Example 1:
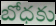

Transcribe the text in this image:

బోధకు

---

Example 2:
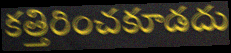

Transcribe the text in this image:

కత్తిరించకూడదు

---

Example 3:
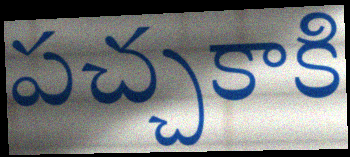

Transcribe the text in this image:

పచ్చకాకి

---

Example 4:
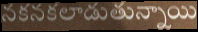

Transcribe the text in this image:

నకనకలాడుతున్నాయి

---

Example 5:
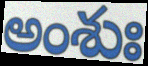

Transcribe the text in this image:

అంశుః